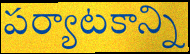
పర్యాటకాన్ని